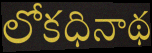
లోకధినాథ